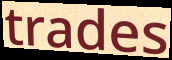
trades